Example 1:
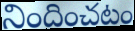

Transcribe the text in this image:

నిందించటం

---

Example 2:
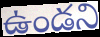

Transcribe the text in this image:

ఉండని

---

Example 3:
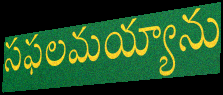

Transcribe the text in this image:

సఫలమయ్యాను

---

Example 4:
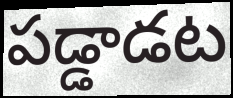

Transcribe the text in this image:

పడ్డాడట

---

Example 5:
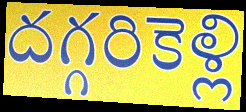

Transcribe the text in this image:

దగ్గరికెళ్లి